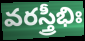
వరస్త్రీభిః